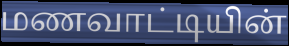
மணவாட்டியின்